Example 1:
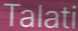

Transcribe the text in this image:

Talati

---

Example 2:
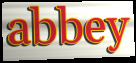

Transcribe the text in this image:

abbey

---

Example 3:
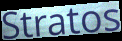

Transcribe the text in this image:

Stratos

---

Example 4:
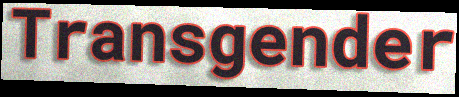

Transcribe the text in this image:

Transgender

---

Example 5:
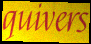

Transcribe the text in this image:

quivers